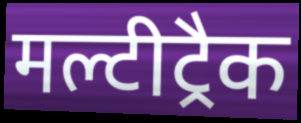
मल्टीट्रैक